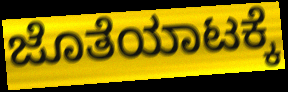
ಜೊತೆಯಾಟಕ್ಕೆ